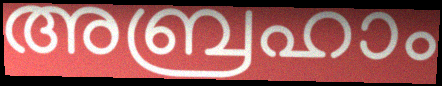
അബ്രഹാം